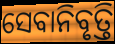
ସେବାନିବୃତ୍ତି